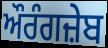
ਔਰੰਗਜ਼ੇਬ